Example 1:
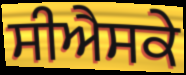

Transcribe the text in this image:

ਸੀਐਸਕੇ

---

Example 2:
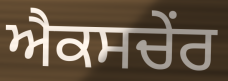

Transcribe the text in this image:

ਐਕਸਚੇਂਰ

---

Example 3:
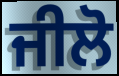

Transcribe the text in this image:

ਜੀਲੋ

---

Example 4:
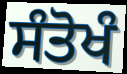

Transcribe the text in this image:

ਸੰਤੋਖੰ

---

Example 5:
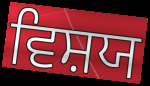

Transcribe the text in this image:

ਵਿਸ਼ਯ